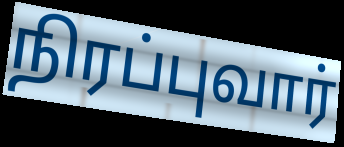
நிரப்புவார்